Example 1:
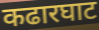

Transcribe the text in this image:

कढारघाट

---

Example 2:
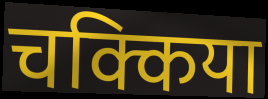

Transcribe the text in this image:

चक्किया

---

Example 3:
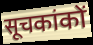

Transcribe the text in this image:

सूचकांकों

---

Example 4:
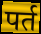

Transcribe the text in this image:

पर्त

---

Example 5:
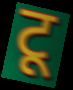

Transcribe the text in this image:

टू